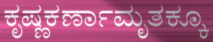
ಕೃಷ್ಣಕರ್ಣಾಮೃತಕ್ಕೂ